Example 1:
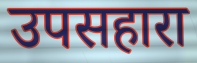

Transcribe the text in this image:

उपसहारा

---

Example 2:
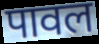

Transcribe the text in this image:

पावल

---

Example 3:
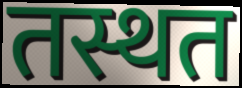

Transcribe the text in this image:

तस्थत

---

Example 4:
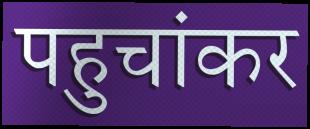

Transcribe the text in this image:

पहुचांकर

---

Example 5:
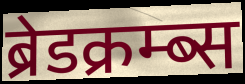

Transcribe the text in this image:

ब्रेडक्रम्ब्स